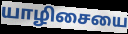
யாழிசையை